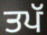
ਤਪੱ